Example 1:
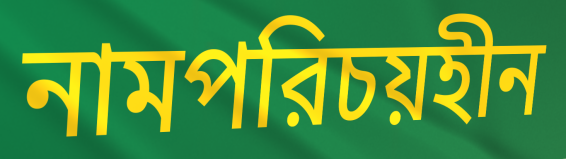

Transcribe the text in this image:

নামপরিচয়হীন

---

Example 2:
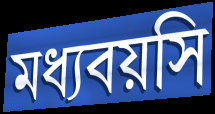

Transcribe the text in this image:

মধ্যবয়সি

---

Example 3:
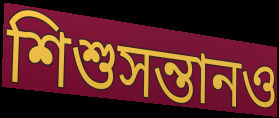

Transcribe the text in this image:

শিশুসন্তানও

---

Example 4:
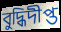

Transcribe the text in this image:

বুদ্ধিদীপ্ত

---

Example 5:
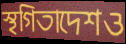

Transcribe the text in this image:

স্থগিতাদেশও